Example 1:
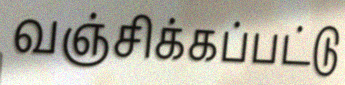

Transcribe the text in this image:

வஞ்சிக்கப்பட்டு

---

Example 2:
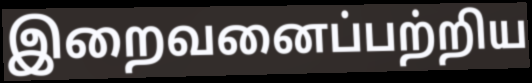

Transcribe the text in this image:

இறைவனைப்பற்றிய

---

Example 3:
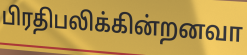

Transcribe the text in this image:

பிரதிபலிக்கின்றனவா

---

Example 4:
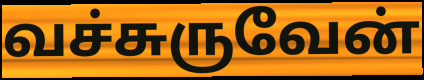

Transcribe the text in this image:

வச்சுருவேன்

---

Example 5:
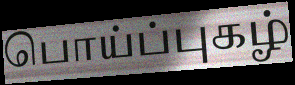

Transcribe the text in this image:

பொய்ப்புகழ்